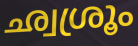
ഛ്വശ്രൂം